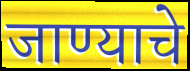
जाण्याचे